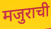
मजुराची